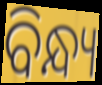
ବିନ୍ଧ୍ୟ